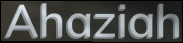
Ahaziah